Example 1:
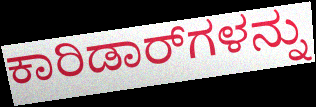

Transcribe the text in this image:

ಕಾರಿಡಾರ್‌ಗಳನ್ನು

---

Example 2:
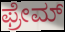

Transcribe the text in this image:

ಫ್ರೇಮ್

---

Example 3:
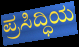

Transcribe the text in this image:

ಪ್ರಸಿದ್ಧಿಯ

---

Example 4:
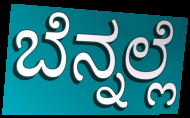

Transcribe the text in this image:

ಬೆನ್ನಲ್ಲೆ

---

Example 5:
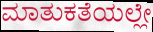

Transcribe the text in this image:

ಮಾತುಕತೆಯಲ್ಲೇ